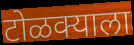
टोळक्याला